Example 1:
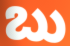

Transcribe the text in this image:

ಬು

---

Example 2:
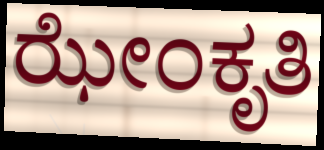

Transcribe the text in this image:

ಝೇಂಕೃತಿ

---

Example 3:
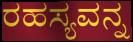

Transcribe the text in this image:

ರಹಸ್ಯವನ್ನ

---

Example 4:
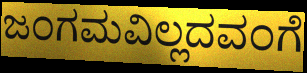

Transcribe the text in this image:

ಜಂಗಮವಿಲ್ಲದವಂಗೆ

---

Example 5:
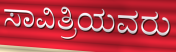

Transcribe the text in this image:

ಸಾವಿತ್ರಿಯವರು